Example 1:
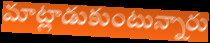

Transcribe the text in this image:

మాట్లాడుకుంటున్నారు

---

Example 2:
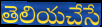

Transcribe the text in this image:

తెలియచేసే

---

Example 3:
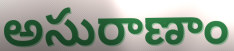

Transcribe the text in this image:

అసురాణాం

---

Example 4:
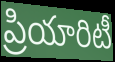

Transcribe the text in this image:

ప్రియారిటీ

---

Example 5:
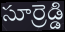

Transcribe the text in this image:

సూర్రెడ్డి